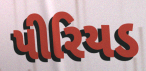
પીરિયડ